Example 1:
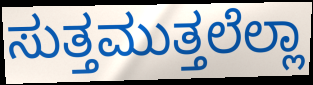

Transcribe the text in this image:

ಸುತ್ತಮುತ್ತಲೆಲ್ಲಾ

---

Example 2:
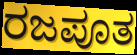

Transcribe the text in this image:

ರಜಪೂತ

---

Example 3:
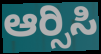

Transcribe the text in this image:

ಆರ್‍ಸಿಸಿ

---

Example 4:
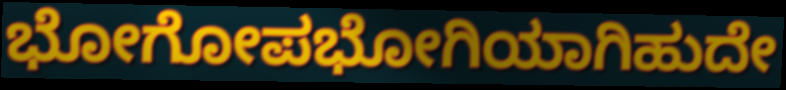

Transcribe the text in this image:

ಭೋಗೋಪಭೋಗಿಯಾಗಿಹುದೇ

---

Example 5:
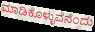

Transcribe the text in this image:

ಮಾಡಿಕೊಳ್ಳುವೆನೆಂದು